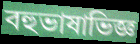
বহুভাষাভিজ্ঞ